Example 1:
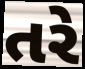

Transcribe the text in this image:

તરે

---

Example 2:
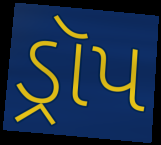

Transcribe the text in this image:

ડ્રૉપ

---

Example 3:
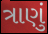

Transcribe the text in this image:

ત્રાણું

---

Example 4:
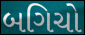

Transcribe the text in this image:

બગિચો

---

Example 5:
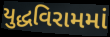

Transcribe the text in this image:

યુદ્ધવિરામમાં